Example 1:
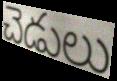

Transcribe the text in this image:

చెడులు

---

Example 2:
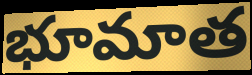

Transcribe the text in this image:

భూమాత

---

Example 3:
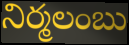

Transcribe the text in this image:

నిర్మలంబు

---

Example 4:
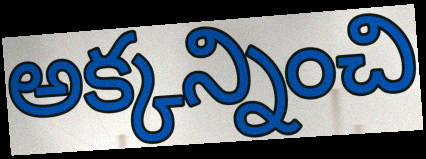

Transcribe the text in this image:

అక్కన్నించి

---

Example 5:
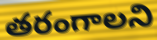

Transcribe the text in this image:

తరంగాలని